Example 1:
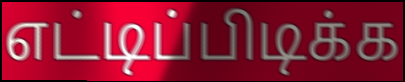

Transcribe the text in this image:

எட்டிப்பிடிக்க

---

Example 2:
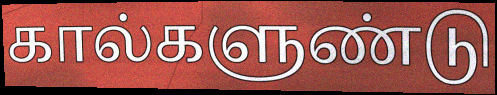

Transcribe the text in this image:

கால்களுண்டு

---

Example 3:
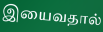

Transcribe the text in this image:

இயைவதால்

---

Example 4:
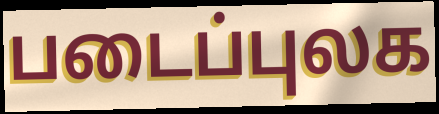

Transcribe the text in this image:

படைப்புலக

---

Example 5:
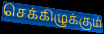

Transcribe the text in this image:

செக்கிழுக்கும்